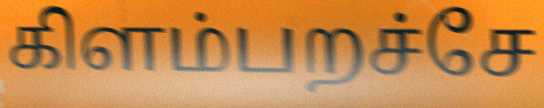
கிளம்பறச்சே